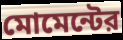
মোমেন্টের